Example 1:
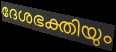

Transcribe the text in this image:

ദേശഭക്തിയും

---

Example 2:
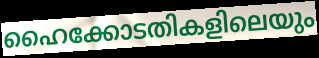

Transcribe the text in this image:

ഹൈക്കോടതികളിലെയും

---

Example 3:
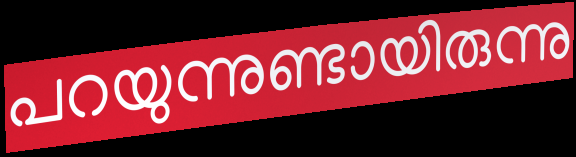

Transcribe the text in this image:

പറയുന്നുണ്ടായിരുന്നു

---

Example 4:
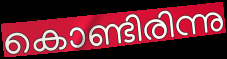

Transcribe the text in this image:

കൊണ്ടിരിന്നു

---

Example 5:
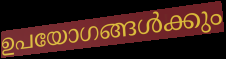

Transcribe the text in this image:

ഉപയോഗങ്ങൾക്കും